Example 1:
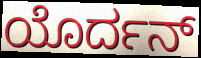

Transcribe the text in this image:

ಯೊರ್ದನ್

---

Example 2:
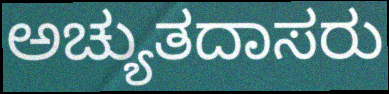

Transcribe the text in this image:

ಅಚ್ಯುತದಾಸರು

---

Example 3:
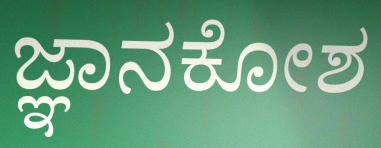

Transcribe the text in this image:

ಜ್ಞಾನಕೋಶ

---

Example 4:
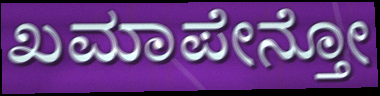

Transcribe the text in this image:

ಖಮಾಪೇನ್ತೋ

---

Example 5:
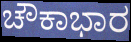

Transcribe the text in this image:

ಚೌಕಾಭಾರ